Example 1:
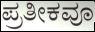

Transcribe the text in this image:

ಪ್ರತೀಕವೂ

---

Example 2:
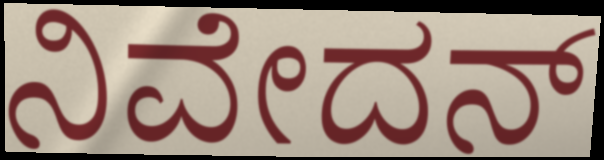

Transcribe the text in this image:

ನಿವೇದನ್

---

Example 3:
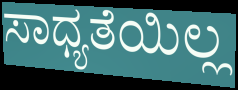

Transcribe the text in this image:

ಸಾಧ್ಯತೆಯಿಲ್ಲ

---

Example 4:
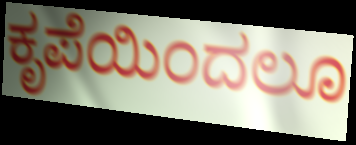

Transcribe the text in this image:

ಕೃಪೆಯಿಂದಲೂ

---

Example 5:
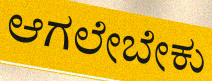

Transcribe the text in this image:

ಆಗಲೇಬೇಕು